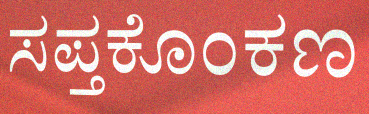
ಸಪ್ತಕೊಂಕಣ